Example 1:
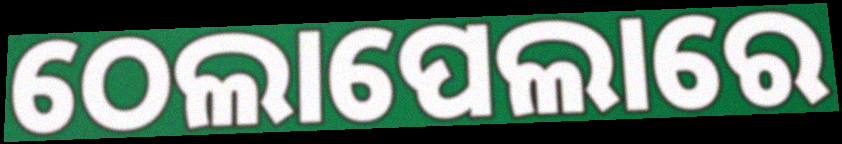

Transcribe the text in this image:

ଠେଲାପେଲାରେ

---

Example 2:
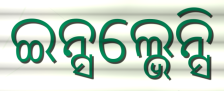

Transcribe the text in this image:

ଇନ୍ସଲ୍ଭେନ୍ସି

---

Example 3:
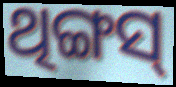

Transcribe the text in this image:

ଥିଙ୍ଗସ୍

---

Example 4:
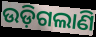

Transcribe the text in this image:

ଉଡ଼ିଗଲାଣି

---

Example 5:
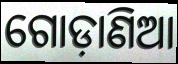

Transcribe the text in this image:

ଗୋଡ଼ାଣିଆ